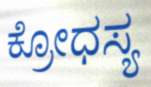
ಕ್ರೋಧಸ್ಯ